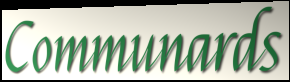
Communards